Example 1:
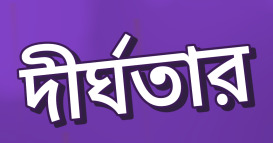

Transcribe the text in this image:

দীর্ঘতার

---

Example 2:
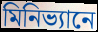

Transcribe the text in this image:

মিনিভ্যানে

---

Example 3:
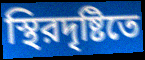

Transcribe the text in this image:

স্থিরদৃষ্টিতে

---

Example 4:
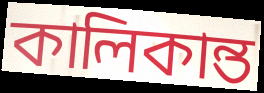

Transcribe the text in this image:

কালিকান্ত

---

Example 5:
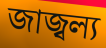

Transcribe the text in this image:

জাজ্বল্য